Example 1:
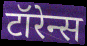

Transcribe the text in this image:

टॉरेन्स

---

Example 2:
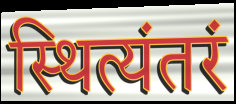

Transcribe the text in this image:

स्थित्यंतरं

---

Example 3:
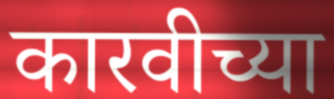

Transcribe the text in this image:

कारवीच्या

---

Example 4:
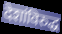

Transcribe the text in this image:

देशांविरुद्ध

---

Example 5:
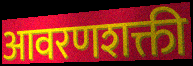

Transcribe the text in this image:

आवरणशक्ती